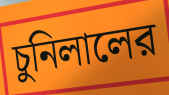
চুনিলালের